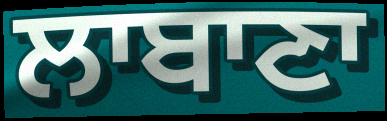
ਲਾਬਾਣਾ